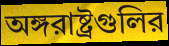
অঙ্গরাষ্ট্রগুলির